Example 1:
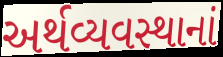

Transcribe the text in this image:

અર્થવ્યવસ્થાનાં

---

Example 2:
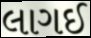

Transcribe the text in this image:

લાગઈ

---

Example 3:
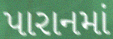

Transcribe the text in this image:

પારાનમાં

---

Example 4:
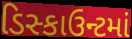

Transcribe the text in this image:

ડિસ્કાઉન્ટમાં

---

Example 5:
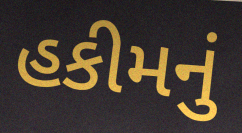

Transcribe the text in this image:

હકીમનું